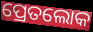
ପ୍ରେତଲୋକ